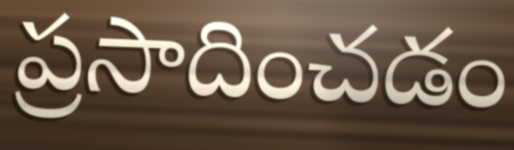
ప్రసాదించడం